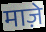
माज़े